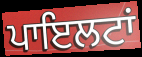
ਪਾਇਲਟਾਂ